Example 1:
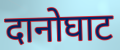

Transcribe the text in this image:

दानोघाट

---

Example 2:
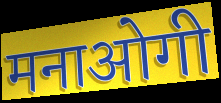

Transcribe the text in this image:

मनाओगी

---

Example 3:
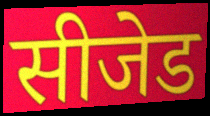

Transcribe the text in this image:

सीजेड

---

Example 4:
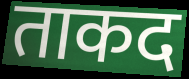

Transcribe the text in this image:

ताकद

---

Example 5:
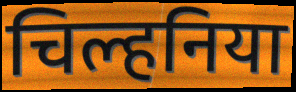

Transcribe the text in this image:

चिल्हनिया